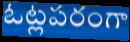
ఓట్లపరంగా